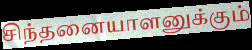
சிந்தனையாளனுக்கும்